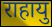
राहायु